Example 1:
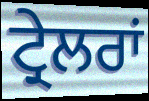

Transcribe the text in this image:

ਟ੍ਰੇਲਰਾਂ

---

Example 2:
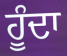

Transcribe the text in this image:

ਹੂੰਦਾ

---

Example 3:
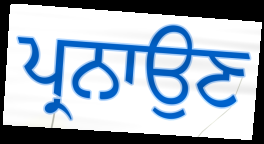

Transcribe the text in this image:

ਪ੍ਰਨਾਉਣ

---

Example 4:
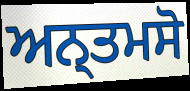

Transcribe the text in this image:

ਅਨ੍ਤਮਸੋ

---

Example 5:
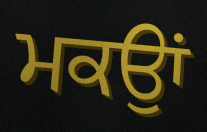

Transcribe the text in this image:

ਮਕਉਾਂ